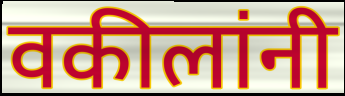
वकीलांनी